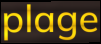
plage